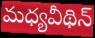
మధ్యవీథిన్